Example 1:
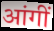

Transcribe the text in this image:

आंगीं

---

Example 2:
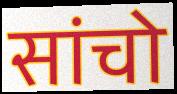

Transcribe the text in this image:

सांचो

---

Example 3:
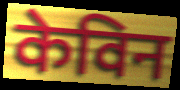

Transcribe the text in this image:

केविन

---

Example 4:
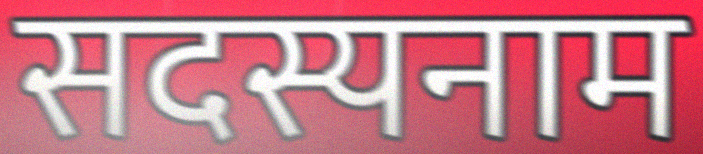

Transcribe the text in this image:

सदस्यनाम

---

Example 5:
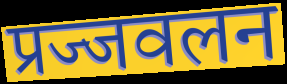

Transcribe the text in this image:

प्रज्‍जवलन